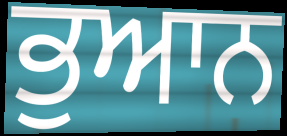
ਭੁਆਨ